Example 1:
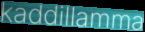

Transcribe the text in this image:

kaddillamma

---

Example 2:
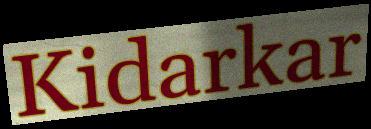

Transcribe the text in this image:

Kidarkar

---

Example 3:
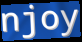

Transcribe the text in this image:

njoy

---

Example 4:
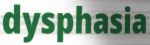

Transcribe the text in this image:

dysphasia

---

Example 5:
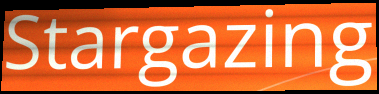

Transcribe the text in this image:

Stargazing